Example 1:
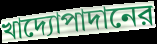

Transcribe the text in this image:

খাদ্যোপাদানের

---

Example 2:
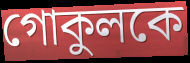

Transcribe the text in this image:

গোকুলকে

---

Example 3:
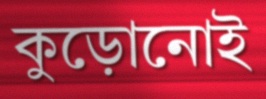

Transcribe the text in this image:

কুড়োনোই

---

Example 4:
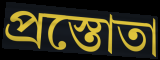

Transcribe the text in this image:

প্রস্তোতা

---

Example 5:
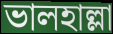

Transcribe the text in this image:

ভালহাল্লা